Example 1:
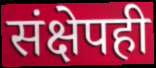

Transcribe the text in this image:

संक्षेपही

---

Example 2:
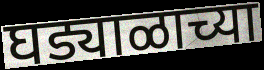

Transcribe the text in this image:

घड्याळाच्या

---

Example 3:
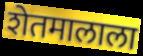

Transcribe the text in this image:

शेतमालाला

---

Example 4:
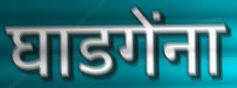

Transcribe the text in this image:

घाडगेंना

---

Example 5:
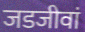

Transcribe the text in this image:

जडजीवां